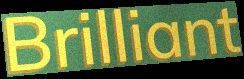
Brilliant